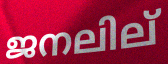
ജനലില്